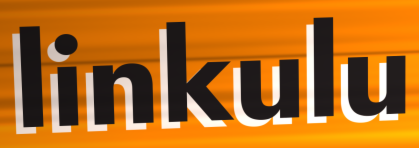
linkulu